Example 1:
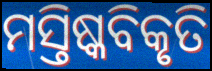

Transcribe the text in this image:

ମସ୍ତିଷ୍କବିକୃତି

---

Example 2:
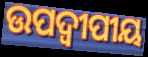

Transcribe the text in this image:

ଉପଦ୍ଵୀପୀୟ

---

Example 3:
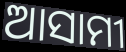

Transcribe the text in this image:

ଆସାମୀ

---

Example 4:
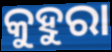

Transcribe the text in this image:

କୁହୁରା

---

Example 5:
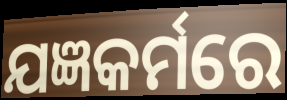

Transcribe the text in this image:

ଯଜ୍ଞକର୍ମରେ